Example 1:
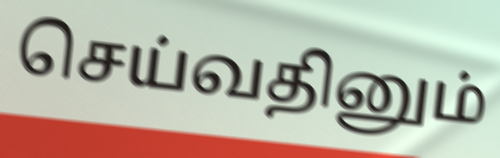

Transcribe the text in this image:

செய்வதினும்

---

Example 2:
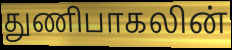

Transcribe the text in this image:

துணிபாகலின்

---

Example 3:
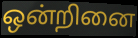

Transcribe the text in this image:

ஒன்றினை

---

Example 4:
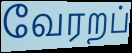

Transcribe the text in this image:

வேரறப்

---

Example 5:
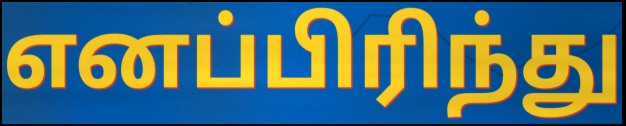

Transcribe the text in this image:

எனப்பிரிந்து